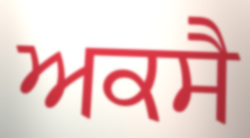
ਅਕਸੈ